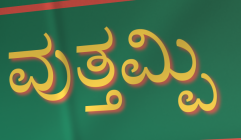
ವುತ್ತಮ್ಪಿ